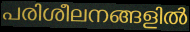
പരിശീലനങ്ങളിൽ